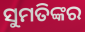
ସୁମତିଙ୍କର